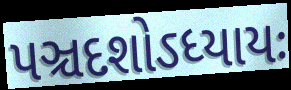
પઞ્ચદશોઽધ્યાયઃ